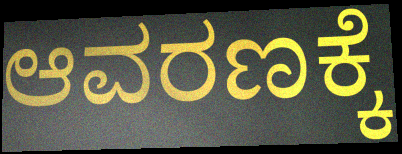
ಆವರಣಕ್ಕೆ